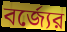
বর্জ্যের